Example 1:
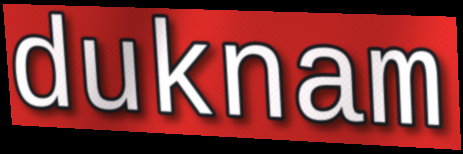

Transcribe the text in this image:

duknam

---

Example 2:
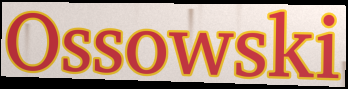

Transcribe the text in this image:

Ossowski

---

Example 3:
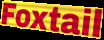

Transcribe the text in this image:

Foxtail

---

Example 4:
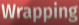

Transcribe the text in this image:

Wrapping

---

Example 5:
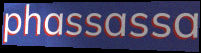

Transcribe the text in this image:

phassassa